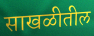
साखळीतील